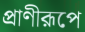
প্রাণীরূপে